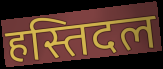
हस्तिदल